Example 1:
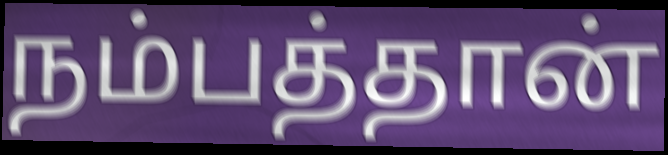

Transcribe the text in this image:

நம்பத்தான்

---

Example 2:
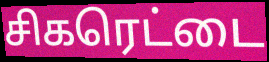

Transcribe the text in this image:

சிகரெட்டை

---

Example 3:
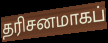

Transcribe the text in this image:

தரிசனமாகப்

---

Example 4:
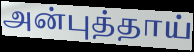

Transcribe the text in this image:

அன்புத்தாய்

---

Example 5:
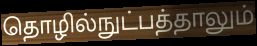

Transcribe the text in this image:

தொழில்நுட்பத்தாலும்